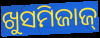
ଖୁସମିଜାଜ୍